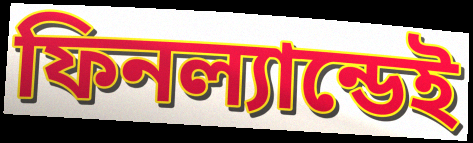
ফিনল্যান্ডেই